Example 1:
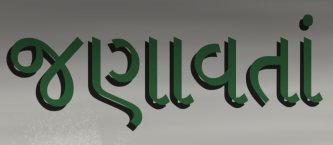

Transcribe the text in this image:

જણાવતાં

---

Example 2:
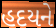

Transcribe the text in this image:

હદયને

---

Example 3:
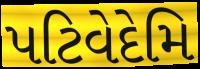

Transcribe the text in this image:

પટિવેદેમિ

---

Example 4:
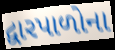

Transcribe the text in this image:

દ્વારપાળોના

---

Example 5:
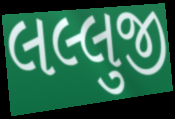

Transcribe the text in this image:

લલ્લુજી